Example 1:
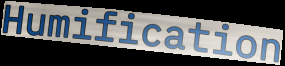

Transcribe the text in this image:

Humification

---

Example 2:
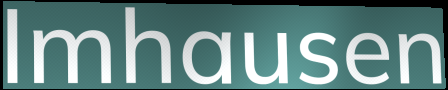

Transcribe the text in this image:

Imhausen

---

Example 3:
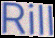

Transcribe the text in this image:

Rill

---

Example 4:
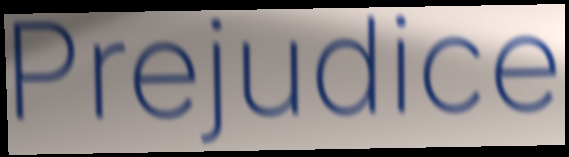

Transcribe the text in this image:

Prejudice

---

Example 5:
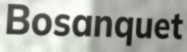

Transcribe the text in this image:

Bosanquet